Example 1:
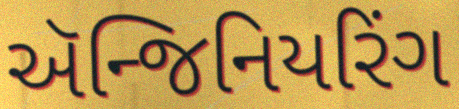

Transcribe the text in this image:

ઍન્જિનિયરિંગ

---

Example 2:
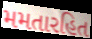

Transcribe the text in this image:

મમતારહિત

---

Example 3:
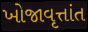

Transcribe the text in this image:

ખોજાવૃત્તાંત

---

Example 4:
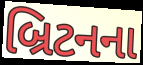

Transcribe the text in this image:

બ્રિટનના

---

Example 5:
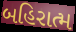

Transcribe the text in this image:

બહિરાત્મ